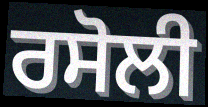
ਰਸੋਲੀ